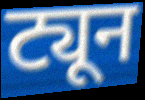
ट्यून